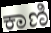
ಕಾಣಿ